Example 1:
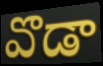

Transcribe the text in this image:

వొడా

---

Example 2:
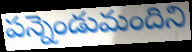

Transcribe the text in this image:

పన్నెండుమందిని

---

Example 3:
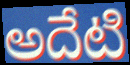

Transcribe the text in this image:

అదేటి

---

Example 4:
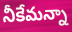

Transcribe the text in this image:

నీకేమన్నా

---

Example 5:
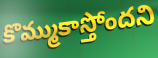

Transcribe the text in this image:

కొమ్ముకాస్తోందని